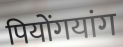
पियोंगयांग